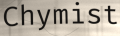
Chymist